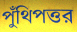
পুঁথিপত্তর